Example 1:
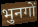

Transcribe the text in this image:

भुनगों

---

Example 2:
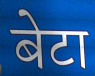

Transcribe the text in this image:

बेटा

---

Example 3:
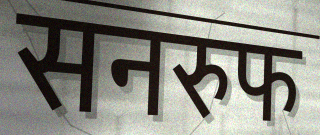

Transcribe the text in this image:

सनरुफ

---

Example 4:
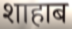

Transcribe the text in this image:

शाहाब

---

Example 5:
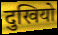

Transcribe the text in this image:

दुखियो